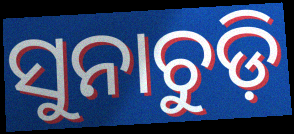
ସୁନାଚୁଡ଼ି